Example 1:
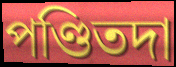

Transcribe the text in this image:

পণ্ডিতদা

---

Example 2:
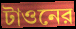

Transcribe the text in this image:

টাওনের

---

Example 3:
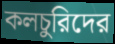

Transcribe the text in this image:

কলচুরিদের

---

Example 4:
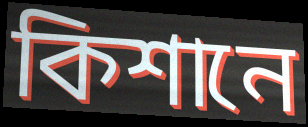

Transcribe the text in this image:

কিশানে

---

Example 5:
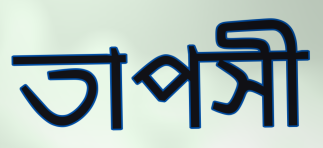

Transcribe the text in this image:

তাপসী